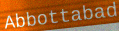
Abbottabad